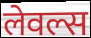
लेवल्स